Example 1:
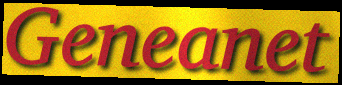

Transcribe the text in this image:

Geneanet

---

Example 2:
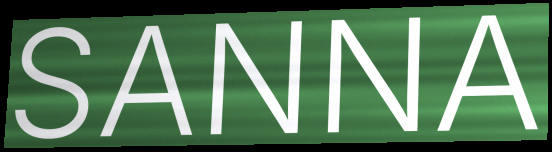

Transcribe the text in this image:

SANNA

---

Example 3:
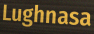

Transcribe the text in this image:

Lughnasa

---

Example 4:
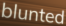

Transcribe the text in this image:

blunted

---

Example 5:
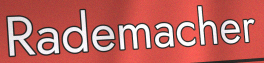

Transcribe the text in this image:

Rademacher